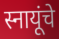
स्नायूंचे